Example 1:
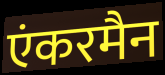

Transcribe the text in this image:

एंकरमैन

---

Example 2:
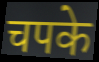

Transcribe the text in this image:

चपके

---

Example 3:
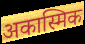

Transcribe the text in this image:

अकास्मिक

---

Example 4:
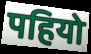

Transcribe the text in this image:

पहियो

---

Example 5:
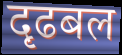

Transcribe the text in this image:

दृढबल